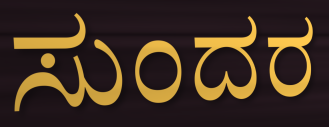
ಸುಂದರ